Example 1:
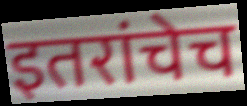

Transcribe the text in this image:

इतरांचेच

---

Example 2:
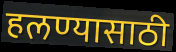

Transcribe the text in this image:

हलण्यासाठी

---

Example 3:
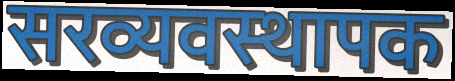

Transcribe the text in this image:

सरव्यवस्थापक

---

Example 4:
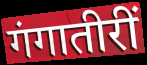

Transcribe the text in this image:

गंगातीरीं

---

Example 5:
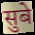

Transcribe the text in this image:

सुबे